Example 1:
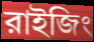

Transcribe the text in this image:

রাইজিং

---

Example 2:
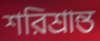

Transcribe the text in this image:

শরিশ্রান্ত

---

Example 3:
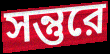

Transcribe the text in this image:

সন্তুরে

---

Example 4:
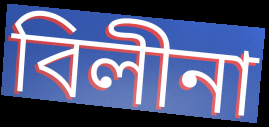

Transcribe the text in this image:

বিলীনা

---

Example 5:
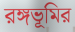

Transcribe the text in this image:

রঙ্গভূমির